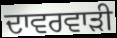
ਦਾਵਰਵਾੜੀ